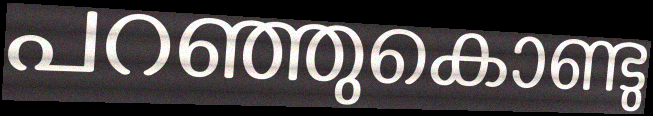
പറഞ്ഞുകൊണ്ടു